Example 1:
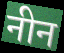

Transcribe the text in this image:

नीन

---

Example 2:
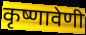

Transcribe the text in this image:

कृष्णावेणी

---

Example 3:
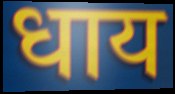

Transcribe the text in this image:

धाय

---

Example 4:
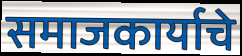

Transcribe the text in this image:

समाजकार्याचे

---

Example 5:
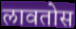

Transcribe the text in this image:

लावतोस